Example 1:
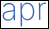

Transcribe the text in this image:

apr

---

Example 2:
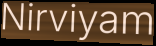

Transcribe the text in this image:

Nirviyam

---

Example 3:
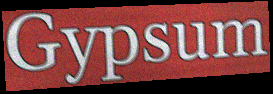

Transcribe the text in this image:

Gypsum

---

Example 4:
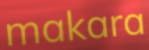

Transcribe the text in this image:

makara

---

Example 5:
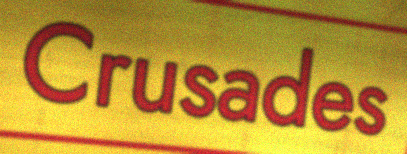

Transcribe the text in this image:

Crusades